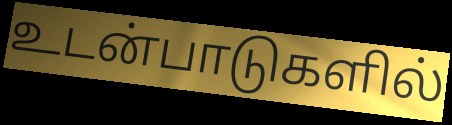
உடன்பாடுகளில்